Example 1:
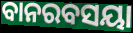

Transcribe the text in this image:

ବାନରବସୟା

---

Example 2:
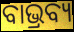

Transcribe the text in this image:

ବାଭ୍ରବ୍ୟ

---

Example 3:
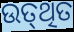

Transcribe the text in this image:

ଉତ୍‌ଥିତ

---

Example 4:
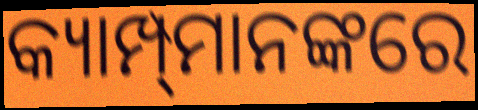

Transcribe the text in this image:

କ୍ୟାମ୍ପ୍‍ମାନଙ୍କରେ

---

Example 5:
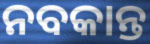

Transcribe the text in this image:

ନବକାନ୍ତ